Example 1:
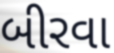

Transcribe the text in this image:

બીરવા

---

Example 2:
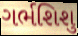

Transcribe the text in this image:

ગર્ભશિશુ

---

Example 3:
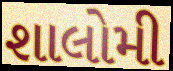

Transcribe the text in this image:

શાલોમી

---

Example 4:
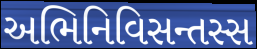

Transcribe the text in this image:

અભિનિવિસન્તસ્સ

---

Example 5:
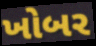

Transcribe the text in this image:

ખોબર